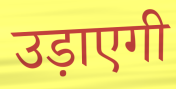
उड़ाएगी